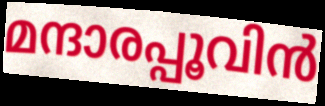
മന്ദാരപ്പൂവിൻ